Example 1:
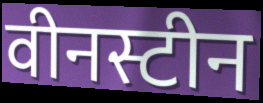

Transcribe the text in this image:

वीनस्टीन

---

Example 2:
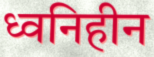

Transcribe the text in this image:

ध्वनिहीन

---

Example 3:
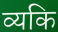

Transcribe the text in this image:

व्यकि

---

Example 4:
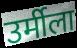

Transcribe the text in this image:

उर्मीला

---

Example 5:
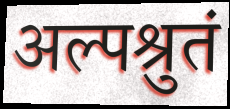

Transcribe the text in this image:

अल्पश्रुतं